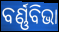
ବର୍ଣ୍ଣବିଭା